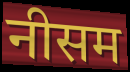
नीसम